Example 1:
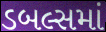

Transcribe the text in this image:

ડબલ્સમાં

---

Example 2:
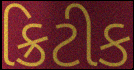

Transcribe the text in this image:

ક્રિટીક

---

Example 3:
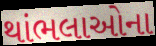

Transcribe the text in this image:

થાંભલાઓના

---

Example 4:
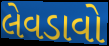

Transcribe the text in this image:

લેવડાવો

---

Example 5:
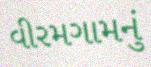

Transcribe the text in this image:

વીરમગામનું